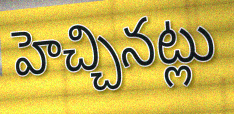
హెచ్చినట్లు